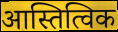
आस्तित्विक